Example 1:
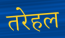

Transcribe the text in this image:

तरेहल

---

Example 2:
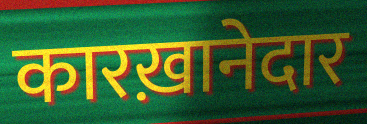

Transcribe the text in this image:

कारख़ानेदार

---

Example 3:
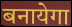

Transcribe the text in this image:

बनायेगा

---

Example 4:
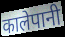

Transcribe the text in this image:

कालेपानी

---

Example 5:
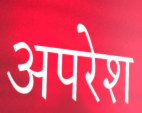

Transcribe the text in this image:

अपरेश